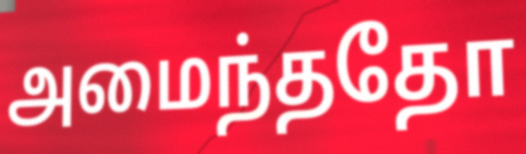
அமைந்ததோ